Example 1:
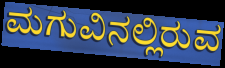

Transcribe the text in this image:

ಮಗುವಿನಲ್ಲಿರುವ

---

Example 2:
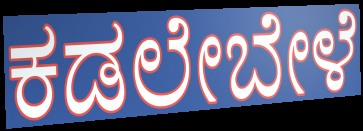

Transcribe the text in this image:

ಕಡಲೇಬೇಳೆ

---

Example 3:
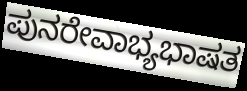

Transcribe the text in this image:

ಪುನರೇವಾಭ್ಯಭಾಷತ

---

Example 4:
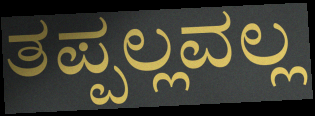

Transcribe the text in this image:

ತಪ್ಪಲ್ಲವಲ್ಲ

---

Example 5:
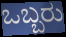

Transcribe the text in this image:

ಒಬ್ಬರು